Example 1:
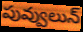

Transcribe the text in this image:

పువ్వులున్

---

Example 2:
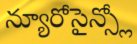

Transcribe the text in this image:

న్యూరోసైన్స్లో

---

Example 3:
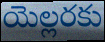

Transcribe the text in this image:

యెల్లరకు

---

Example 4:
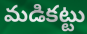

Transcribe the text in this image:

మడికట్టు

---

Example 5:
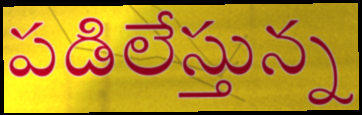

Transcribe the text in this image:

పడిలేస్తున్న